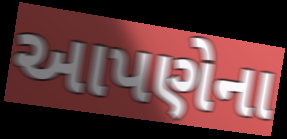
આપણેના